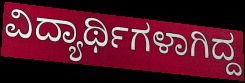
ವಿದ್ಯಾರ್ಥಿಗಳಾಗಿದ್ದ